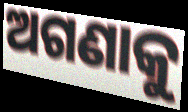
ଅଗଣାକୁ